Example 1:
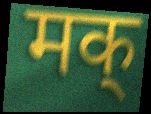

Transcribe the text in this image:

मक्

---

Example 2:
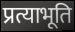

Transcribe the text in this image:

प्रत्याभूति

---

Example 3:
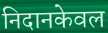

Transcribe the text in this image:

निदानकेवल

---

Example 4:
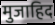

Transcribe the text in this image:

मुजाहिद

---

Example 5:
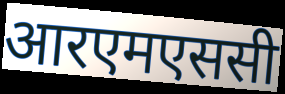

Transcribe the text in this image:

आरएमएससी